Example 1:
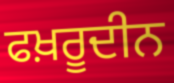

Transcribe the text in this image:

ਫਖ਼ਰੂਦੀਨ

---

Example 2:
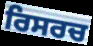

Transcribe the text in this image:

ਰਿਸਰਚ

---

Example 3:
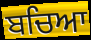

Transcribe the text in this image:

ਬਚਿਆ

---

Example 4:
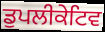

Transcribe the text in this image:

ਡੁਪਲੀਕੇਟਿਵ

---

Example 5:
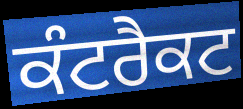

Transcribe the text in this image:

ਕੰਟਰੈਕਟ